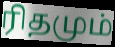
ரிதமும்